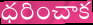
ధరించాక